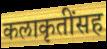
कलाकृतींसह